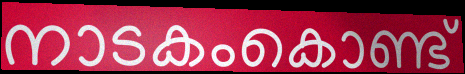
നാടകംകൊണ്ട്